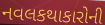
નવલકથાકારોની